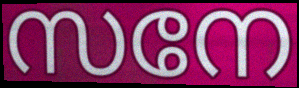
സനേ